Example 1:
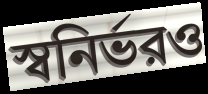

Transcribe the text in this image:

স্বনির্ভরও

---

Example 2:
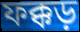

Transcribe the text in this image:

ফক্কড়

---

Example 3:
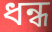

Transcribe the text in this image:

ধন্ধ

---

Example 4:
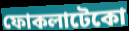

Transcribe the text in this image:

ফোকলাটেকো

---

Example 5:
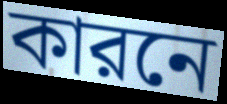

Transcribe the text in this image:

কারনে